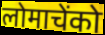
लोमाचेंको